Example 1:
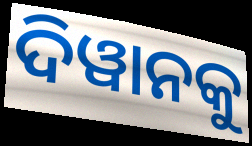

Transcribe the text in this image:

ଦିୱାନକୁ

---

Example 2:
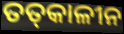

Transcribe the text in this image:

ତତ୍‍କାଳୀନ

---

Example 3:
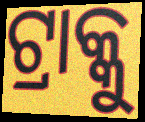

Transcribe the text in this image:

ଟ୍ରାକ୍କୁ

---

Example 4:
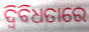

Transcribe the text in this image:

ଦ୍ୱିବିଧତାରେ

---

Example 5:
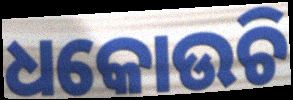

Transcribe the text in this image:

ଧକୋଉଚି